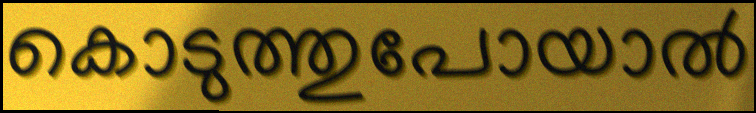
കൊടുത്തുപോയാൽ